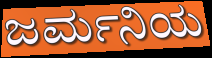
ಜರ್ಮನಿಯ